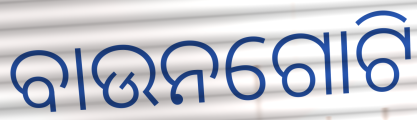
ବାଉନଗୋଟି